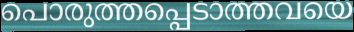
പൊരുത്തപ്പെടാത്തവയെ